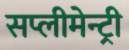
सप्लीमेन्ट्री